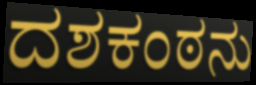
ದಶಕಂಠನು